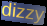
dizzy